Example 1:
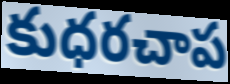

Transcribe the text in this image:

కుధరచాప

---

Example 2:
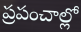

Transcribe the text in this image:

ప్రపంచాల్లో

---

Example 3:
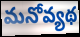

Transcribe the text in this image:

మనోవ్యథ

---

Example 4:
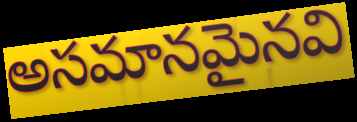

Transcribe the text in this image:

అసమానమైనవి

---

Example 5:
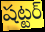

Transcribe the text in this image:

షట్టర్